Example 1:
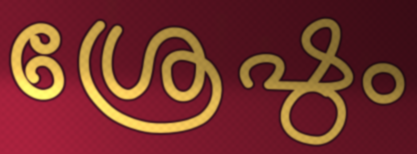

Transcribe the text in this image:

ശ്രേഷ്ഠം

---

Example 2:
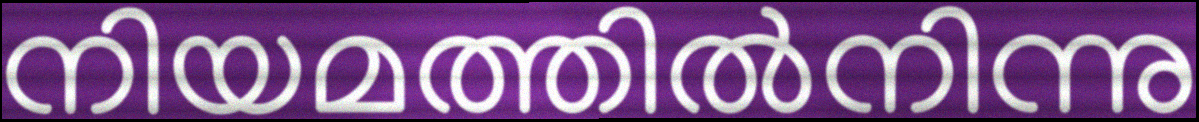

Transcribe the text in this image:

നിയമത്തിൽനിന്നു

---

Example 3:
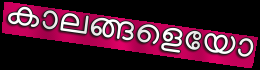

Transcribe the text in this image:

കാലങ്ങളെയോ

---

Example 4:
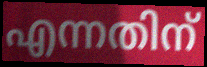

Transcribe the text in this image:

എന്നതിന്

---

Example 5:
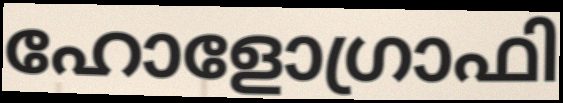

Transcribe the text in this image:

ഹോളോഗ്രാഫി